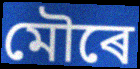
মৌৰে